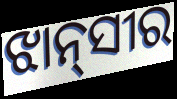
ଝାନ୍‌ସୀର